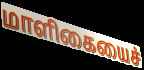
மாளிகையைச்